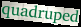
quadruped